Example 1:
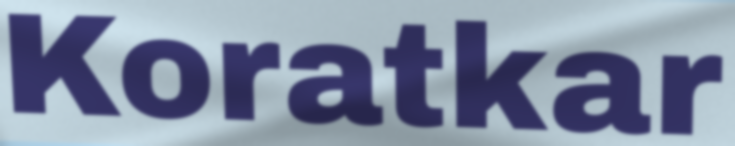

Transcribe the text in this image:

Koratkar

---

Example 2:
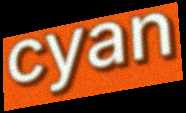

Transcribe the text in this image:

cyan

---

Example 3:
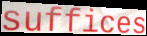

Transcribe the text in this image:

suffices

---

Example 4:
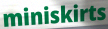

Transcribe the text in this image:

miniskirts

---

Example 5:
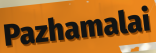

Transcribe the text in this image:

Pazhamalai